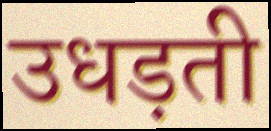
उधड़ती